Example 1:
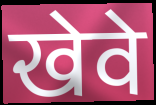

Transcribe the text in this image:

खेवे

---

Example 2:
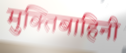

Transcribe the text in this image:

मुक्तिबाहिनी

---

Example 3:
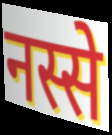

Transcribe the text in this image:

नस्से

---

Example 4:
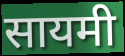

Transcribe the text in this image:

सायमी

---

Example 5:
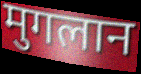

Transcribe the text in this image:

मुगलान